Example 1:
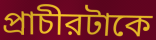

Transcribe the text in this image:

প্রাচীরটাকে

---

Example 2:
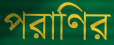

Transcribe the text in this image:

পরাণির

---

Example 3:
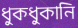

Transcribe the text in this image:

ধুকধুকানি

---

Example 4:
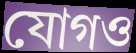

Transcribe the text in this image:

যোগও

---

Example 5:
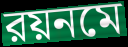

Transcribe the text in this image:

রয়নমে